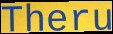
Theru